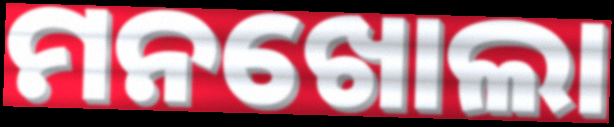
ମନଖୋଲା